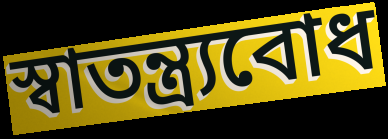
স্বাতন্ত্র্যবোধ